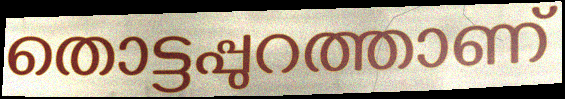
തൊട്ടപ്പുറത്താണ്